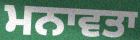
ਮਨਾਵਤਾ